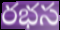
రభస